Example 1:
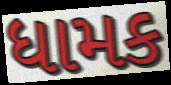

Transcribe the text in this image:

ધામક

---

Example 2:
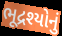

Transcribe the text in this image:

ભૂદ્રશ્યોનું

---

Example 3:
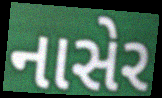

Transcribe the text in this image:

નાસેર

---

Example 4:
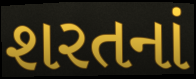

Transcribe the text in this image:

શરતનાં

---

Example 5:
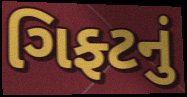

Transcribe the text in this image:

ગિફ્ટનું